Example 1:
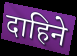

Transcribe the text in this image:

दाहिने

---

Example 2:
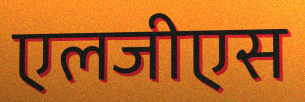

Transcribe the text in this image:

एलजीएस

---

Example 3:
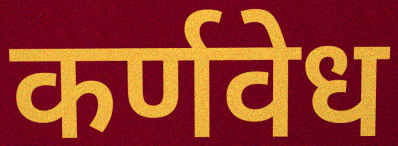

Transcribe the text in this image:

कर्णवेध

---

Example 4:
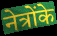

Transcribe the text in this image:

नेत्रोंके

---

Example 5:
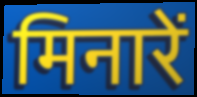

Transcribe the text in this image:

मिनारें